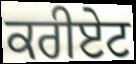
ਕਰੀਏਟ